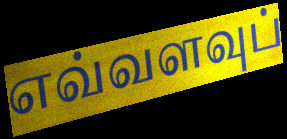
எவ்வளவுப்